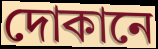
দোকানে